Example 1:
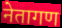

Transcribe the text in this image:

नेतागण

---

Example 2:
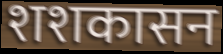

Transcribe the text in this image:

शशकासन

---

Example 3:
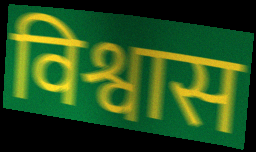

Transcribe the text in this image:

विश्वास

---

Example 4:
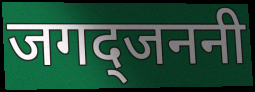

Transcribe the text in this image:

जगद्जननी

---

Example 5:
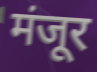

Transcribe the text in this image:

मंजूर